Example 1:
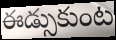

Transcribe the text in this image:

ఈడ్సుకుంట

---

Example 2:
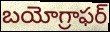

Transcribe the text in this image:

బయోగ్రాఫర్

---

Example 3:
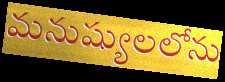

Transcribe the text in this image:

మనుష్యులలోను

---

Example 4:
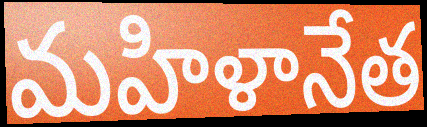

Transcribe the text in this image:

మహిళానేత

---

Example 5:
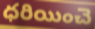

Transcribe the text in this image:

ధరియించె